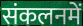
संकलनमें